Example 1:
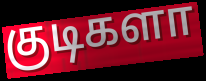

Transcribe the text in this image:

குடிகளா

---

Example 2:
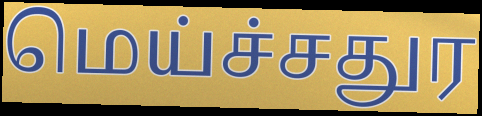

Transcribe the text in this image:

மெய்ச்சதுர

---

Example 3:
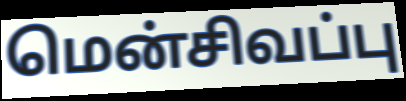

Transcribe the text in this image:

மென்சிவப்பு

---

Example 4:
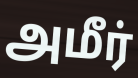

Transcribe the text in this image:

அமீர்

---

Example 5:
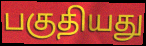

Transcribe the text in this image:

பகுதியது